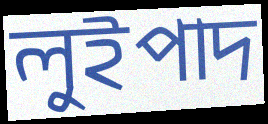
লুইপাদ